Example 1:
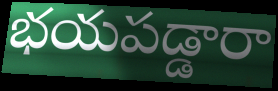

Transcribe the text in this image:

భయపడ్డారా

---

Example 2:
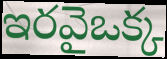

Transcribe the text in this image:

ఇరవైఒక్క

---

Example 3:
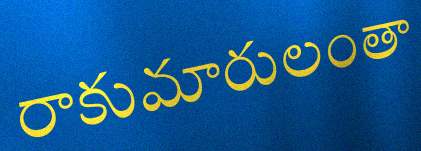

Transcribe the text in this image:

రాకుమారులంతా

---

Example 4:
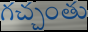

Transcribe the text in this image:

గచ్చంతు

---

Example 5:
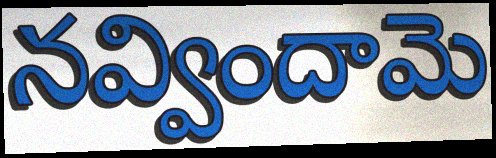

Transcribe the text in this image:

నవ్విందామె